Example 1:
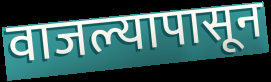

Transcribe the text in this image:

वाजल्यापासून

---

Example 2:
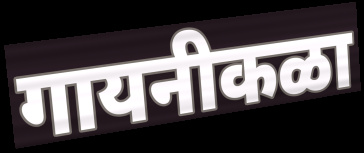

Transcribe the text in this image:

गायनीकळा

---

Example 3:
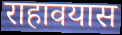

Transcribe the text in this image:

राहावयास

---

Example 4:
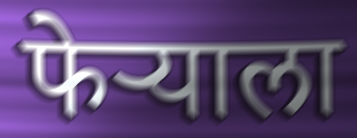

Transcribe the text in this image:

फेऱ्याला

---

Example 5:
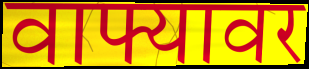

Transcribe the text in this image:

वाफ्यावर